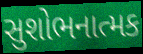
સુશોભનાત્મક